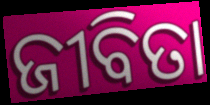
ଜୀବିତା